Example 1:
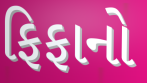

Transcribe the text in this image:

ફિફાનો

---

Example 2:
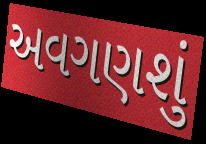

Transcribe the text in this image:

અવગણશું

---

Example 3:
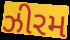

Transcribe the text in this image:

ઝીરમ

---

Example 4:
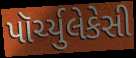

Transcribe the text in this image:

પૉર્ચ્યુલેકેસી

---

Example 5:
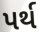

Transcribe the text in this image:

પર્થ